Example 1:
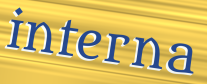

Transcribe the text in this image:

interna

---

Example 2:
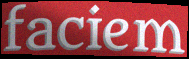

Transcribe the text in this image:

faciem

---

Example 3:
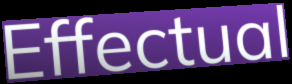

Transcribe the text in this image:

Effectual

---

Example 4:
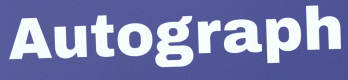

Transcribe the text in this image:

Autograph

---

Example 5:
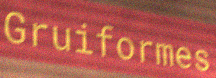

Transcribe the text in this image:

Gruiformes